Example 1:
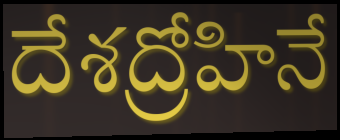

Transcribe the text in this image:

దేశద్రోహినే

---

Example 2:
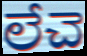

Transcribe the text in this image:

లేచె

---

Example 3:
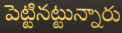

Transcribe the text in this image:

పెట్టినట్టున్నారు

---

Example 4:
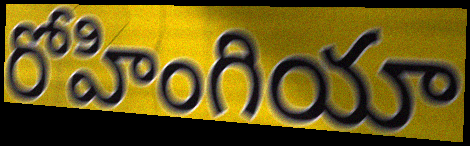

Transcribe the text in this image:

రోహింగియా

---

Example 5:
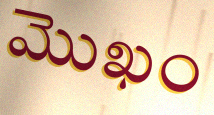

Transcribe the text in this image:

మొఖం